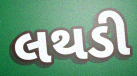
લથડી